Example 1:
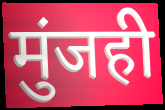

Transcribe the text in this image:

मुंजही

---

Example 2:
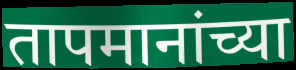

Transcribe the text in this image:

तापमानांच्या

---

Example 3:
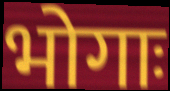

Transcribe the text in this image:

भोगाः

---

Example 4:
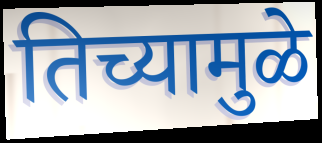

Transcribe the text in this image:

तिच्यामुळे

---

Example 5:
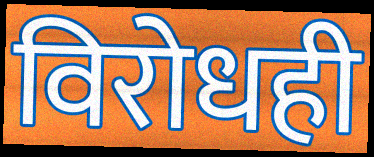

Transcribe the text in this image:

विरोधही